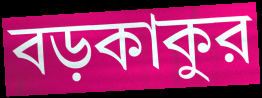
বড়কাকুর